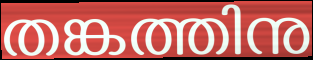
തങ്കത്തിനു